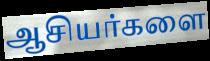
ஆசியர்களை